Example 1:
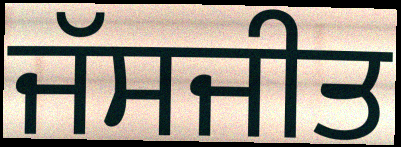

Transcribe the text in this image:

ਜੱਸਜੀਤ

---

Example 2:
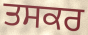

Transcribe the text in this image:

ਤਸਕਰ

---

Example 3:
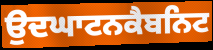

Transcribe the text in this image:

ਉਦਘਾਟਨਕੈਬਨਿਟ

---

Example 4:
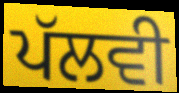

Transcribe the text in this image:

ਪੱਲਵੀ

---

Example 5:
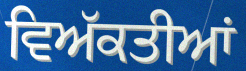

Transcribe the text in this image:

ਵਿਅੱਕਤੀਆਂ